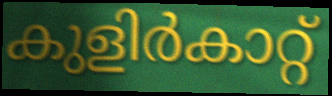
കുളിർകാറ്റ്